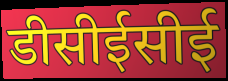
डीसीईसीई